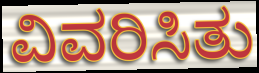
ವಿವರಿಸಿತು